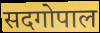
सदगोपाल